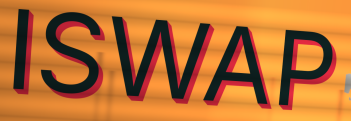
ISWAP